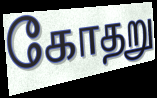
கோதறு